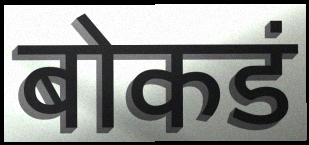
बोकडं